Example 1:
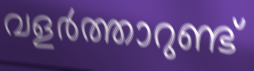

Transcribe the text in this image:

വളർത്താറുണ്ട്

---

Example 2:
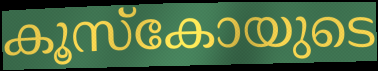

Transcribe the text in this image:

കൂസ്കോയുടെ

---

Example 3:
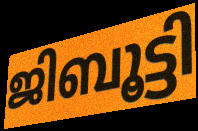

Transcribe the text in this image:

ജിബൂട്ടി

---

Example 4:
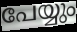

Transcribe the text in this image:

പേയ്യും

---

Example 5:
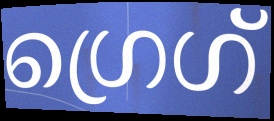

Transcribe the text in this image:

ഗ്രെഗ്